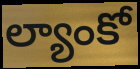
ల్యాంకో